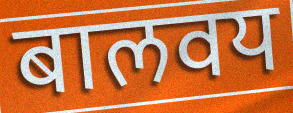
बालवय